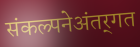
संकल्पनेअंतर्गत